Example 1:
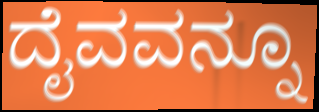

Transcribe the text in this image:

ದೈವವನ್ನೂ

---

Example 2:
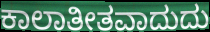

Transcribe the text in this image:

ಕಾಲಾತೀತವಾದುದು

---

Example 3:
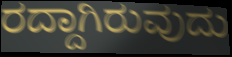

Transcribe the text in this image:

ರದ್ದಾಗಿರುವುದು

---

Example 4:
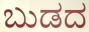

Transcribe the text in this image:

ಬುಡದ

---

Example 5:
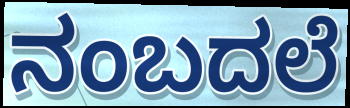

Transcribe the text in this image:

ನಂಬದಲೆ